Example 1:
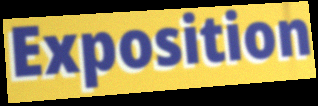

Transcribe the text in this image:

Exposition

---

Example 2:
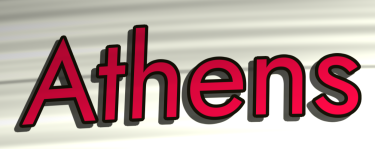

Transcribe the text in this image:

Athens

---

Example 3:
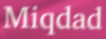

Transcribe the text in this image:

Miqdad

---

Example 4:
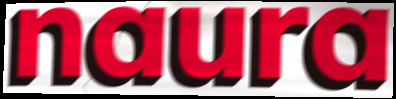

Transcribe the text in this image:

naura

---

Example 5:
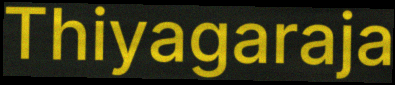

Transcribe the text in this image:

Thiyagaraja